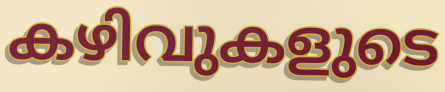
കഴിവുകളുടെ